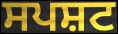
ਸਪਸ਼ਟ